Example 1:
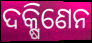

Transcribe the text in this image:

ଦକ୍ଷିଣେନ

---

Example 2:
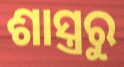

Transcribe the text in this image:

ଶାସ୍ତ୍ରରୁ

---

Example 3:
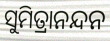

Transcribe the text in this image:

ସୁମିତ୍ରାନନ୍ଦନ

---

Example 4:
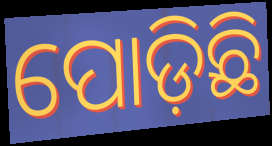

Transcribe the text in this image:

ପୋଡ଼ିଛି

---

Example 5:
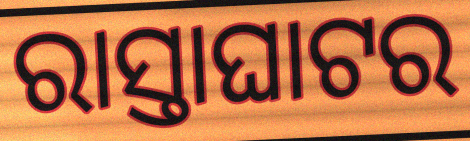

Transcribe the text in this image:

ରାସ୍ତାଘାଟର